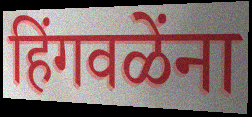
हिंगवळेंना